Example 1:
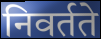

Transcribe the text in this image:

निवर्तते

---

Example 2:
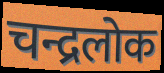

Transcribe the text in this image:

चन्द्रलोक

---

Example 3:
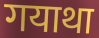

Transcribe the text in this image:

गयाथा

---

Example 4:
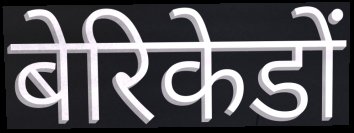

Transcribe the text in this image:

बेरिकेडों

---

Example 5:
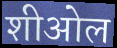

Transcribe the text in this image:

शीओल